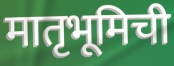
मातृभूमिची